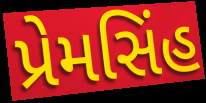
પ્રેમસિંહ